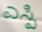
ಎಸ್ಪಿ